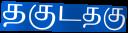
தகுடதகு